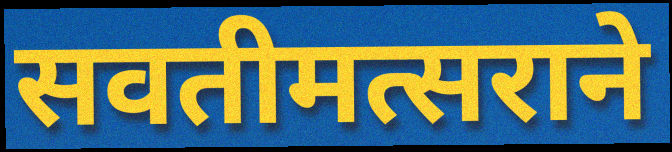
सवतीमत्सराने